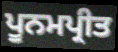
ਪੂਨਮਪ੍ਰੀਤ